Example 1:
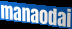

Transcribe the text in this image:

manaodai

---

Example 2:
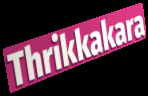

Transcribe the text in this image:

Thrikkakara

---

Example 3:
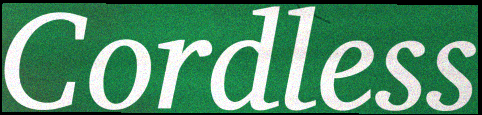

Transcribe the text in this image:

Cordless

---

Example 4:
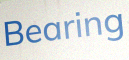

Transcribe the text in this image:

Bearing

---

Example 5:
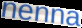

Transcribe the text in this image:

nenna